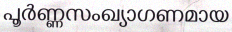
പൂർണ്ണസംഖ്യാഗണമായ